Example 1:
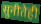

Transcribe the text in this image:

सुनीतेही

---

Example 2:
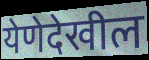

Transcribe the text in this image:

येणेदेखील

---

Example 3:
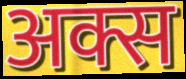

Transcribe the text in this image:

अक्स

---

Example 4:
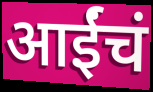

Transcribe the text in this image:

आईंचं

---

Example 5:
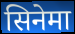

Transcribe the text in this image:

सिनेमा